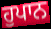
ਹੁਪਾਨ